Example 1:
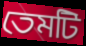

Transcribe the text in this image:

তেমটি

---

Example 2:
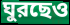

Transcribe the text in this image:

ঘুরছেও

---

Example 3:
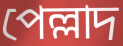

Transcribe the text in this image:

পেল্লাদ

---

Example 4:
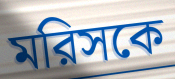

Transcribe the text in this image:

মরিসকে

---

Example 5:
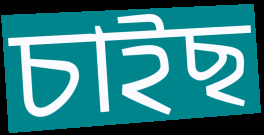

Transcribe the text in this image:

চাইছ